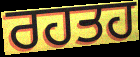
ਰਹਤਹ